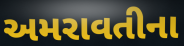
અમરાવતીના